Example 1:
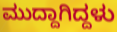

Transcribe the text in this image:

ಮುದ್ದಾಗಿದ್ದಳು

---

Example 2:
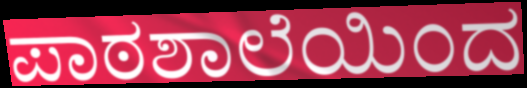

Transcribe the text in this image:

ಪಾಠಶಾಲೆಯಿಂದ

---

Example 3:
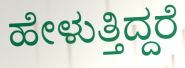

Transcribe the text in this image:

ಹೇಳುತ್ತಿದ್ದರೆ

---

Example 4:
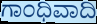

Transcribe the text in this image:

ಗಾಂಧಿವಾದಿ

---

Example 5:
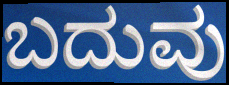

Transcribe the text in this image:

ಬದುವು